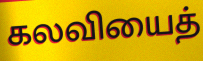
கலவியைத்